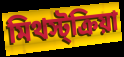
মিথস্ট্ক্রিয়া